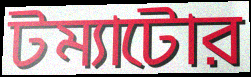
টম্যাটোর